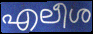
എലീശ